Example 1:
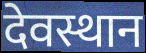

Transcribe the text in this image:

देवस्थान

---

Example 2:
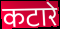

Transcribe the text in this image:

कटारे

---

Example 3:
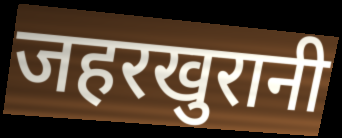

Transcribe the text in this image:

जहरखुरानी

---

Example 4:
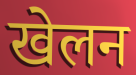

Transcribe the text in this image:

खेलन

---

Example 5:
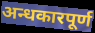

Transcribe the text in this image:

अन्धकारपूर्ण